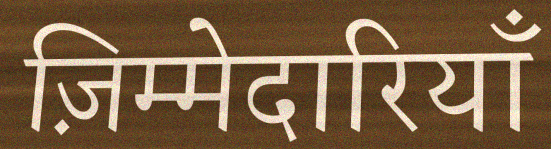
ज़िम्मेदारियाँ